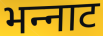
भन्नाट